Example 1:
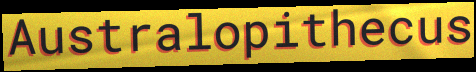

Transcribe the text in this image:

Australopithecus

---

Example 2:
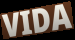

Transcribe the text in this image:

VIDA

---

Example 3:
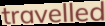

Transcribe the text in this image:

travelled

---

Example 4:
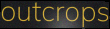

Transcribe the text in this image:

outcrops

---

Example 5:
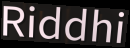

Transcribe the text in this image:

Riddhi